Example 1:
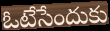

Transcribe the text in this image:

ఓటేసేందుకు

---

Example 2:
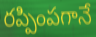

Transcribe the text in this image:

రప్పింపగానే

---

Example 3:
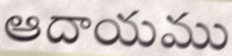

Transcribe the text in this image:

ఆదాయము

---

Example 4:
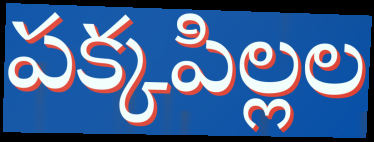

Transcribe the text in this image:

పక్కపిల్లల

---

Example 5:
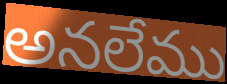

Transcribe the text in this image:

అనలేము